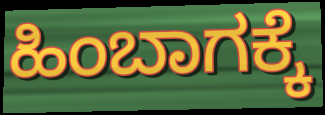
ಹಿಂಬಾಗಕ್ಕೆ